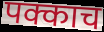
पक्काच